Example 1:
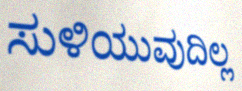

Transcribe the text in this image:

ಸುಳಿಯುವುದಿಲ್ಲ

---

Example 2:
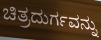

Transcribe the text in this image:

ಚಿತ್ರದುರ್ಗವನ್ನು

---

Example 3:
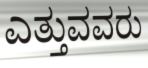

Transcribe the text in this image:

ಎತ್ತುವವರು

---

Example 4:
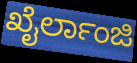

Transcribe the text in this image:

ಖೈರ್ಲಾಂಜಿ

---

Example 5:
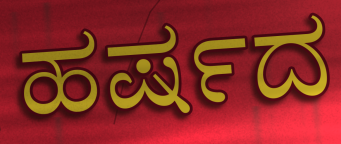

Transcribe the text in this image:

ಹರ್ಷದ